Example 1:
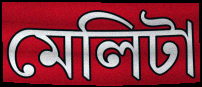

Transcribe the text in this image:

মেলিটা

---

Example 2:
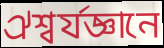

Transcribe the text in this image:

ঐশ্বর্যজ্ঞানে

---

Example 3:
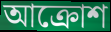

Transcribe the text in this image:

আক্রোশ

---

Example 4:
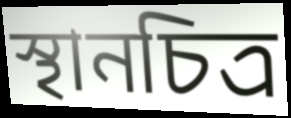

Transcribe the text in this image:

স্থানচিত্র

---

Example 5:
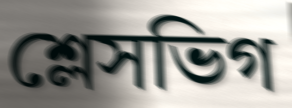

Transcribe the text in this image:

শ্লেসভিগ